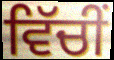
ਵਿੱਚੀਂ